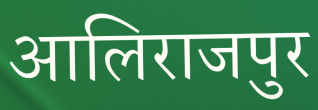
आलिराजपुर